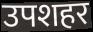
उपशहर